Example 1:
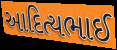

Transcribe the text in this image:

આદિત્યભાઈ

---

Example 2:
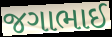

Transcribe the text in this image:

જગાભાઈ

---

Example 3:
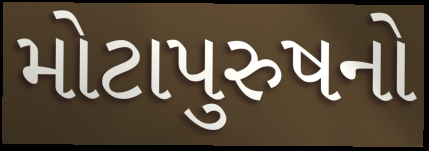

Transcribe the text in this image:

મોટાપુરુષનો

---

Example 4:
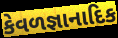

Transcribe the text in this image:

કેવળજ્ઞાનાદિક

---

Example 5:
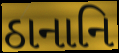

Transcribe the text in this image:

ઠાનાનિ